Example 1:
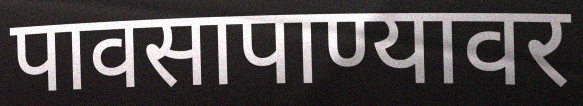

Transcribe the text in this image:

पावसापाण्यावर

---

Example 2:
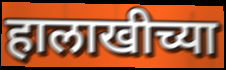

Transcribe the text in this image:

हालाखीच्या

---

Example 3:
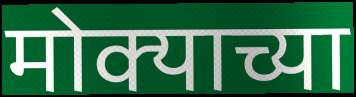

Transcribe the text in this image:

मोक्याच्या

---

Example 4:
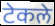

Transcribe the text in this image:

टेकले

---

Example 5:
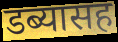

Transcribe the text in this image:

डब्यासह